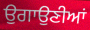
ਉਗਾਉਣੀਆਂ